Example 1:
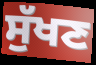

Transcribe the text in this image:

ਸੁੱਖਣ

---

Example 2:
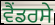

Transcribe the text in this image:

ਵੈਂਡਰਸੇ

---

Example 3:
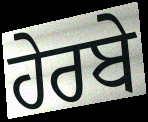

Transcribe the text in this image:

ਹੇਰਬੇ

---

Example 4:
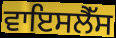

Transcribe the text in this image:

ਵਾਇਸਲੈੱਸ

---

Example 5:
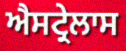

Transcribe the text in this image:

ਐਸਟ੍ਰੇਲਾਸ